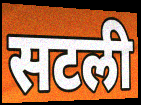
सटली